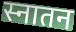
स्नातन